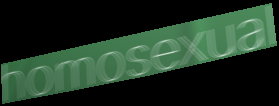
homosexual